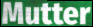
Mutter